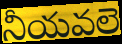
నీయవలె